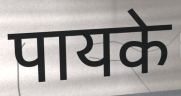
पायके